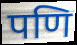
पणि